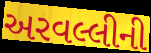
અરવલ્લીની